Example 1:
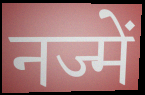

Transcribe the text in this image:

नज्में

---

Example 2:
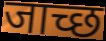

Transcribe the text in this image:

जाच्छ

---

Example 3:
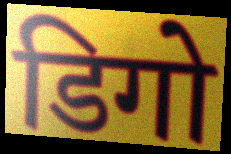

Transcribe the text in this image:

डिगो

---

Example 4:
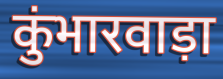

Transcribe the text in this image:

कुंभारवाड़ा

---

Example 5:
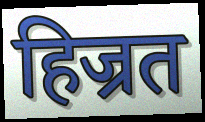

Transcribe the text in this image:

हिज्रत